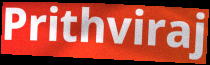
Prithviraj